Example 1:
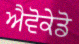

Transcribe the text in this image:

ਐਵੋਕੇਡੋ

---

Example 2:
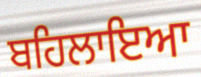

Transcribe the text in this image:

ਬਹਿਲਾਇਆ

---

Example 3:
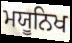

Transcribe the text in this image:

ਮਯੂਨਿਖ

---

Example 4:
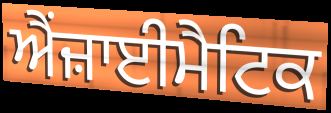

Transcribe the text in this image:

ਐਂਜ਼ਾਈਮੈਟਿਕ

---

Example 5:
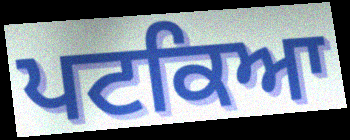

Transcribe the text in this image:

ਪਟਕਿਆ